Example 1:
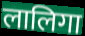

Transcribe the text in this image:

लालिगा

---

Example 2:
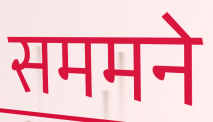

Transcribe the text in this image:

सममने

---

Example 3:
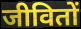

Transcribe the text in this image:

जीवितों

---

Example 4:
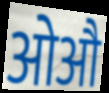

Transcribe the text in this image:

ओऔ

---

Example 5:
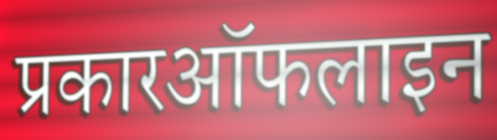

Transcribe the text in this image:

प्रकारऑफलाइन